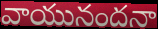
వాయునందనా